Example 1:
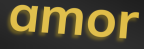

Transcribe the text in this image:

amor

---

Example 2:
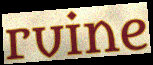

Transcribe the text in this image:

ruine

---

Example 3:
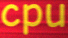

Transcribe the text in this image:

cpu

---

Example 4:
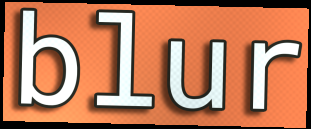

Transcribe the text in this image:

blur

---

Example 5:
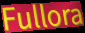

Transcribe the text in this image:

Fullora